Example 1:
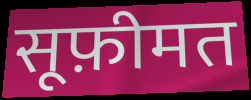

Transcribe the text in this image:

सूफ़ीमत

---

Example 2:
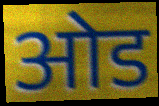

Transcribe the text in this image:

ओड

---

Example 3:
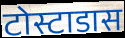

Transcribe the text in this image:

टोस्टाडास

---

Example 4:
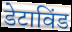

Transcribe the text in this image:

डेटाविंड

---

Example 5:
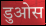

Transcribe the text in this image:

डुओस